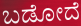
ಬಡೋದೆ